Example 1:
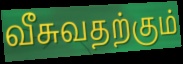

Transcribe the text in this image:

வீசுவதற்கும்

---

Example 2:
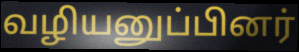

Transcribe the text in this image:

வழியனுப்பினர்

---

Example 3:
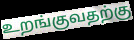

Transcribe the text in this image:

உறங்குவதற்கு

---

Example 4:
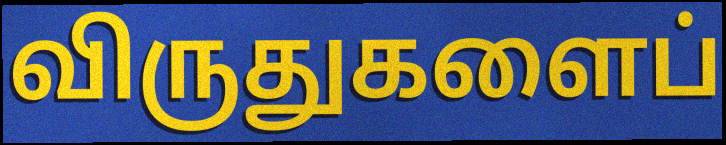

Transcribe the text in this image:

விருதுகளைப்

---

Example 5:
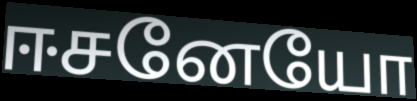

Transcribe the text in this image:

ஈசனேயோ